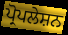
ਪ੍ਰੋਪਲੇਸ਼ਨ